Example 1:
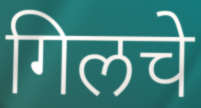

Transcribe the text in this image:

गिलचे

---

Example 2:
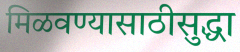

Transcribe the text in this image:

मिळवण्यासाठीसुद्धा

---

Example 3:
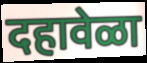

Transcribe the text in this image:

दहावेळा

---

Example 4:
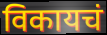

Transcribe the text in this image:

विकायचं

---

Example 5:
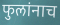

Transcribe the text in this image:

फुलांनाच